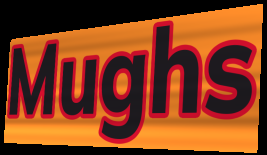
Mughs